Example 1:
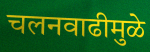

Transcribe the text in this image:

चलनवाढीमुळे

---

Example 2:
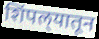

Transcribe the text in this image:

शिंपल्यातून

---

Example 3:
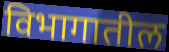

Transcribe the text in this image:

विभागातील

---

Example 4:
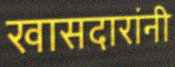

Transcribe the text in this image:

खासदारांनी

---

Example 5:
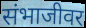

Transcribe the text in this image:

संभाजीवर